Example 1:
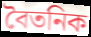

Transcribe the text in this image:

বৈতনিক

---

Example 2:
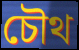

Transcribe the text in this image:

চৌথ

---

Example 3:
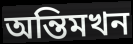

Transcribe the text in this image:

অন্তিমখন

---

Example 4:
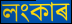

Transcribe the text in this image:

লংকাৰ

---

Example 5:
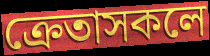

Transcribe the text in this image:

ক্ৰেতাসকলে